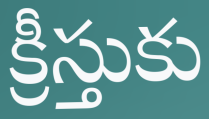
క్రీస్తుకు